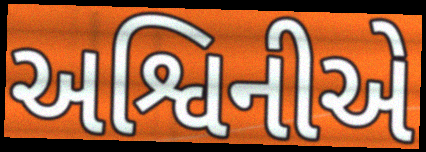
અશ્વિનીએ